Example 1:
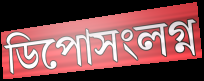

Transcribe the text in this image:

ডিপোসংলগ্ন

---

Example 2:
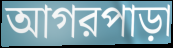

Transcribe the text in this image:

আগরপাড়া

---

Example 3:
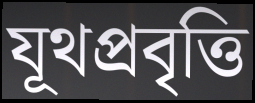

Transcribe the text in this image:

যূথপ্রবৃত্তি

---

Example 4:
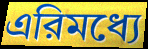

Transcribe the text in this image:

এরিমধ্যে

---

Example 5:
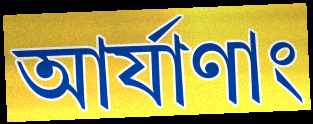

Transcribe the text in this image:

আর্যাণাং